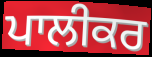
ਪਾਲੀਕਰ